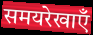
समयरेखाएँ